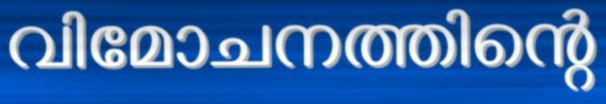
വിമോചനത്തിന്റെ